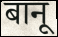
बानू